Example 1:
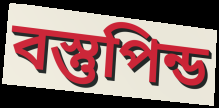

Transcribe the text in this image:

বস্তুপিন্ড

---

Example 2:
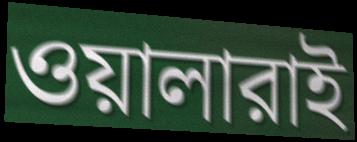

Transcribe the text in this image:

ওয়ালারাই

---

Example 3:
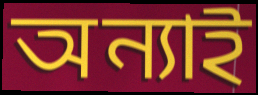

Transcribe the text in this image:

অন্যাই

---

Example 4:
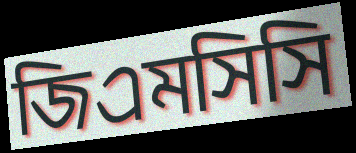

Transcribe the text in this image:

জিএমসিসি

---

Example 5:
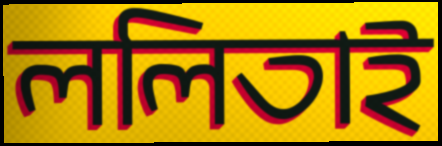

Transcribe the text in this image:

ললিতাই